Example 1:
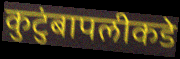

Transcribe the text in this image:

कुटुंबापलीकडे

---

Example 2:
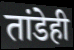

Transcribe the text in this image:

तांडेही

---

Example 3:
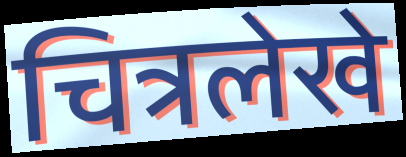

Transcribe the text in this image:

चित्रलेखे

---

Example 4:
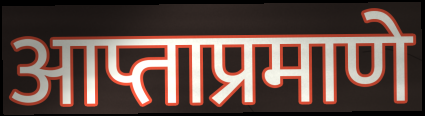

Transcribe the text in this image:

आप्ताप्रमाणे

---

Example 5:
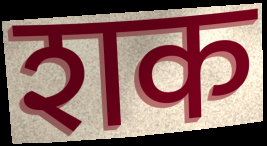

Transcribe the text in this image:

शक